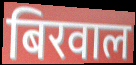
बिरवाल